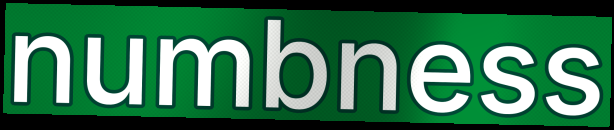
numbness